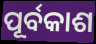
ପୂର୍ବକାଶ